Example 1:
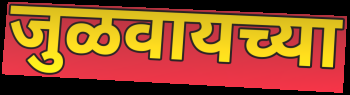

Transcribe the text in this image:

जुळवायच्या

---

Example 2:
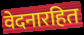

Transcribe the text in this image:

वेदनारहित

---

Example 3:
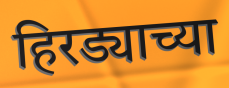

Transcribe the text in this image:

हिरड्याच्या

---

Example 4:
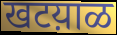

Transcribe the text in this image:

खटय़ाळ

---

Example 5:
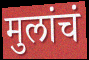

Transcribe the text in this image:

मुलांचं